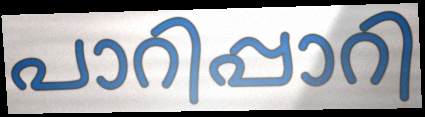
പാറിപ്പാറി